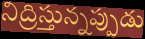
నిద్రిస్తున్నప్పుడు